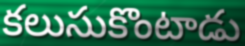
కలుసుకొంటాడు